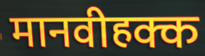
मानवीहक्क